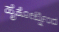
ಹೈಕೋರ್ಟ್ನಿಂದ